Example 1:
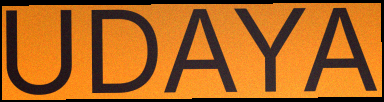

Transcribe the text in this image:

UDAYA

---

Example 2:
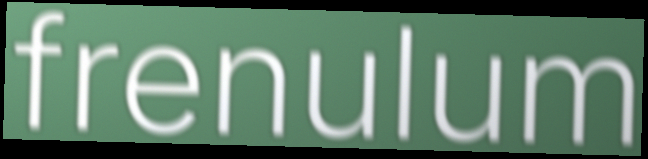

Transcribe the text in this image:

frenulum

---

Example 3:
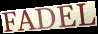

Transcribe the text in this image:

FADEL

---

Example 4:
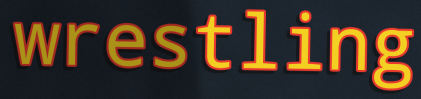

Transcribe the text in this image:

wrestling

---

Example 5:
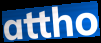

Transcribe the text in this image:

attho